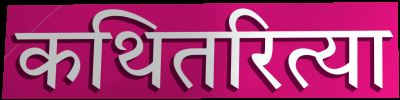
कथितरित्या